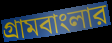
গ্রামবাংলার